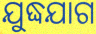
ଯୁଦ୍ଧଯାଗ